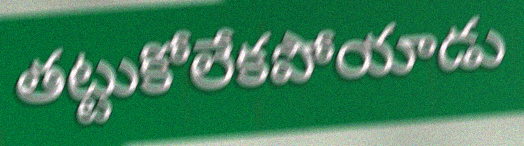
తట్టుకోలేకపోయాడు